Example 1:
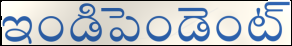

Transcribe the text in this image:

ఇండిపెండెంట్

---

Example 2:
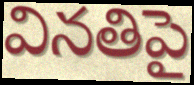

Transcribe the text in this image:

వినతిపై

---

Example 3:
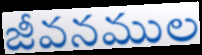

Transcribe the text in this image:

జీవనముల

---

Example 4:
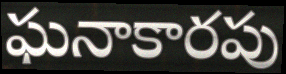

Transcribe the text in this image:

ఘనాకారపు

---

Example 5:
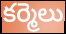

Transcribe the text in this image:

కర్మెలు